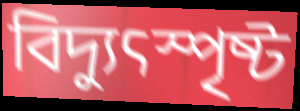
বিদ্যুৎস্পৃষ্ট